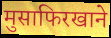
मुसाफिरखाने